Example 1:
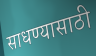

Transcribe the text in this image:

साधण्यासाठी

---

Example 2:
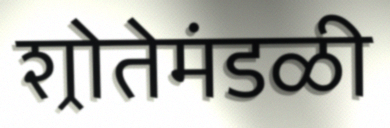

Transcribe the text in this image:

श्रोतेमंडळी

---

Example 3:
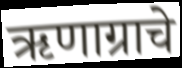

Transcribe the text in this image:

ऋणाग्राचे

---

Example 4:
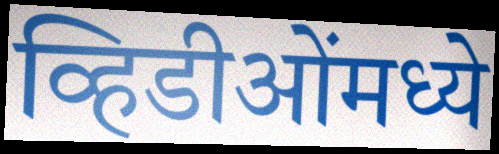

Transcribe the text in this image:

व्हिडीओंमध्ये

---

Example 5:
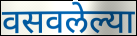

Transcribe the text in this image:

वसवलेल्या